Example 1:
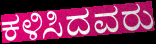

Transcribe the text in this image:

ಕಳಿಸಿದವರು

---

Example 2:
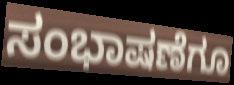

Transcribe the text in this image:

ಸಂಭಾಷಣೆಗೂ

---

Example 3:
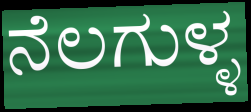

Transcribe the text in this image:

ನೆಲಗುಳ್ಳ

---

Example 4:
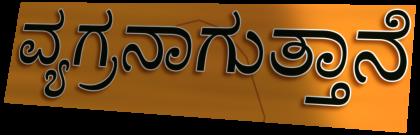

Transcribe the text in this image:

ವ್ಯಗ್ರನಾಗುತ್ತಾನೆ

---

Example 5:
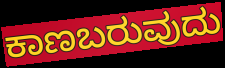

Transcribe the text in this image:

ಕಾಣಬರುವುದು